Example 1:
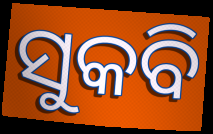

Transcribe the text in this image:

ସୁକବି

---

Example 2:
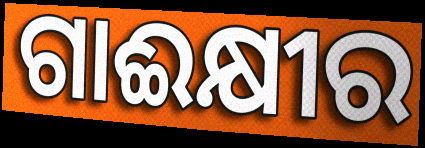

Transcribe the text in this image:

ଗାଈକ୍ଷୀର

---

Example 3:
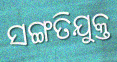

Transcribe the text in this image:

ସଙ୍ଗତିଯୁକ୍ତ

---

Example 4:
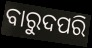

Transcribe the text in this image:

ବାରୁଦପରି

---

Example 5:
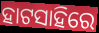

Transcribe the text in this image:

ହାଟସାହିରେ